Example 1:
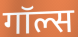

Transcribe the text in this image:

गॉल्स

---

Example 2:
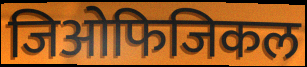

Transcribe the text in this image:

जिओफिजिकल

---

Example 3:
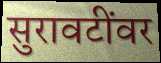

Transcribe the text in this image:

सुरावटींवर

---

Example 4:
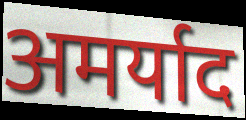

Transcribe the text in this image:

अमर्याद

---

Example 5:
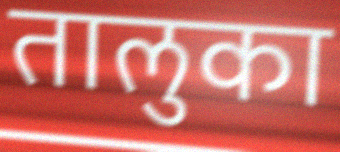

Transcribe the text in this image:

तालुका